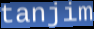
tanjim